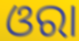
ଓରା